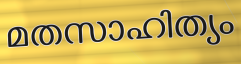
മതസാഹിത്യം